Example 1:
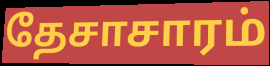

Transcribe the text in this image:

தேசாசாரம்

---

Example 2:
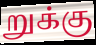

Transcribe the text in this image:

றுக்கு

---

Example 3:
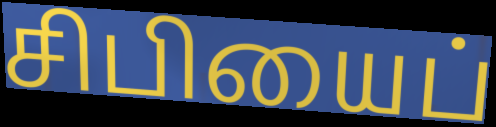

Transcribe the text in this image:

சிபியைப்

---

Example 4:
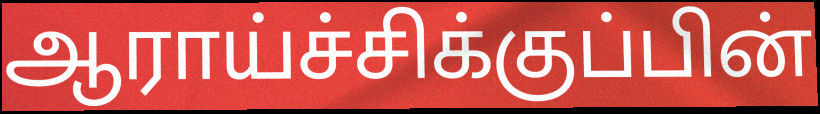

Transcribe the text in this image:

ஆராய்ச்சிக்குப்பின்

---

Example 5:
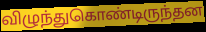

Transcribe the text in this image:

விழுந்துகொண்டிருந்தன